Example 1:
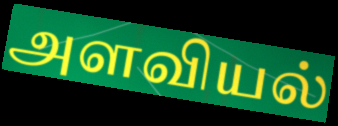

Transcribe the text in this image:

அளவியல்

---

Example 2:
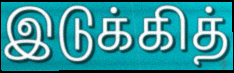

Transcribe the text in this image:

இடுக்கித்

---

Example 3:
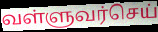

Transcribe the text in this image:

வள்ளுவர்செய்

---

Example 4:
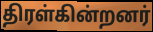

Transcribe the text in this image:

திரள்கின்றனர்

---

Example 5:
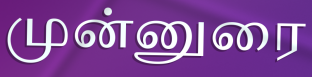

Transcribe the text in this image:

முன்னுரை